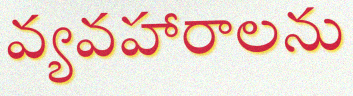
వ్యవహారాలను